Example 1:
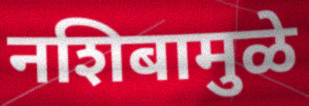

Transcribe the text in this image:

नशिबामुळे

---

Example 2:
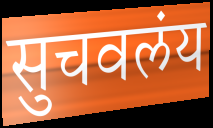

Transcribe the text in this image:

सुचवलंय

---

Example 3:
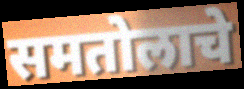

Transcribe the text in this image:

समतोलाचे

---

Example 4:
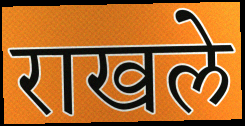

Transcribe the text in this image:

राखले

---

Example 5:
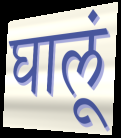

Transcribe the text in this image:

घालूं